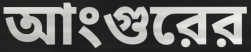
আংগুরের